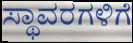
ಸ್ಥಾವರಗಳಿಗೆ